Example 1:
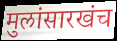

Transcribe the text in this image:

मुलांसारखंच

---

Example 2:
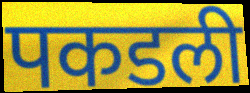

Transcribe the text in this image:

पकडली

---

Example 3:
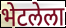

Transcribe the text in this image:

भेटलेला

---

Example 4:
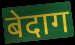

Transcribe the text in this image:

बेदाग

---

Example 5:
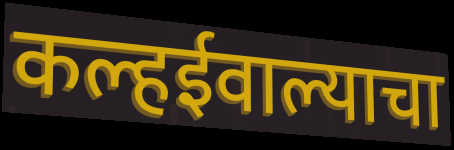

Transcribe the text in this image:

कल्हईवाल्याचा